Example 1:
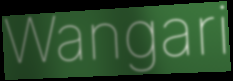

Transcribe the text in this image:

Wangari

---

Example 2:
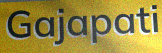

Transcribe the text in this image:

Gajapati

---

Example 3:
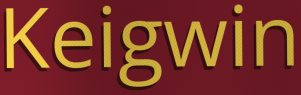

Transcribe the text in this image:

Keigwin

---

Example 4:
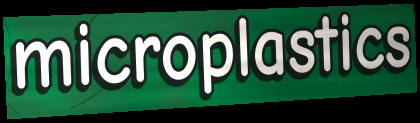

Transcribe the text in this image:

microplastics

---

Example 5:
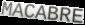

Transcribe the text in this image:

MACABRE